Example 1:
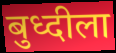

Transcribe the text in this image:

बुध्दीला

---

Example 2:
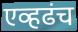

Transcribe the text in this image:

एव्हढंच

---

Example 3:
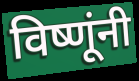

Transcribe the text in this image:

विष्णूंनी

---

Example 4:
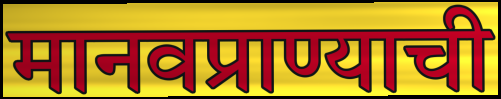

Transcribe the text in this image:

मानवप्राण्याची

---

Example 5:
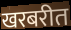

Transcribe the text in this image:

खरबरीत